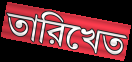
তারিখেত